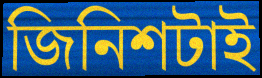
জিনিশটাই